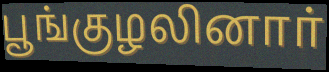
பூங்குழலினார்